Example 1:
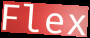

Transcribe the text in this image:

Flex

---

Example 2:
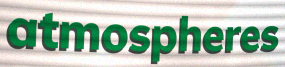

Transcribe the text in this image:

atmospheres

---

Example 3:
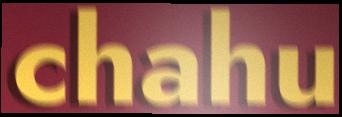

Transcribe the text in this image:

chahu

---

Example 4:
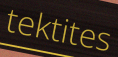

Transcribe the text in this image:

tektites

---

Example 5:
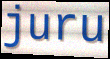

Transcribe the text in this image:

juru